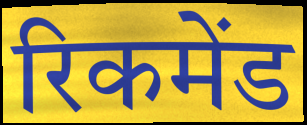
रिकमेंड